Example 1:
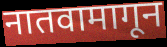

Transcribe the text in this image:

नातवामागून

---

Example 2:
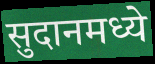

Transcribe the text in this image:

सुदानमध्ये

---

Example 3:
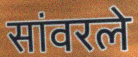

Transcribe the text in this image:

सांवरले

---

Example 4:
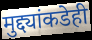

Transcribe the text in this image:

मुद्द्यांकडेही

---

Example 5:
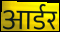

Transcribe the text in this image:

आर्डर